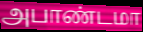
அபாண்டமா